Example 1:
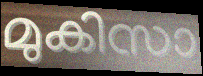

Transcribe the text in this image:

മുകിസാ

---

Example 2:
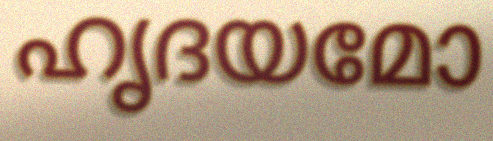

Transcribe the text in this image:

ഹൃദയമോ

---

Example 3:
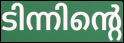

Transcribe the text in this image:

ടിന്നിന്റെ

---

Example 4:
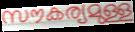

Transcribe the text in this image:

സൗകര്യമുള്ള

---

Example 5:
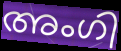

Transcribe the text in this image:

അംഗി